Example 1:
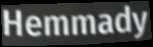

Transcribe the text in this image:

Hemmady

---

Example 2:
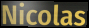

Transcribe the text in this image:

Nicolas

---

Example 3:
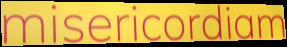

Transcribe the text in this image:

misericordiam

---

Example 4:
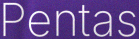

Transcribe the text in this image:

Pentas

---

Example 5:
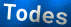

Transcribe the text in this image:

Todes